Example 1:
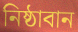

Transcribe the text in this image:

নিষ্ঠাবান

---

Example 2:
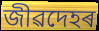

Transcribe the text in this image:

জীৱদেহৰ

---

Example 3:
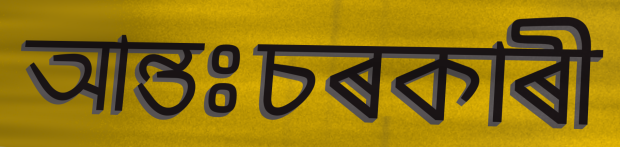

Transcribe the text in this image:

আন্তঃচৰকাৰী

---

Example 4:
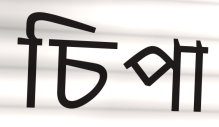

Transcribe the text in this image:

চিপা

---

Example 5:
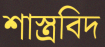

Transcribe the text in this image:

শাস্ত্ৰবিদ